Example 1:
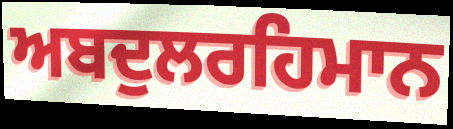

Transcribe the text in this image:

ਅਬਦੁਲਰਹਿਮਾਨ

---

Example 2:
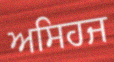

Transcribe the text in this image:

ਅਸਿਹਜ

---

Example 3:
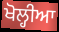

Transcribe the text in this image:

ਖੋਲ੍ਹੀਆ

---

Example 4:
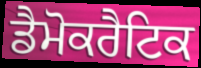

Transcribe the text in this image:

ਡੈਮੋਕਰੈਟਿਕ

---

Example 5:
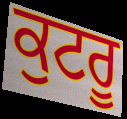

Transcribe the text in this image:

ਕੁਟਰੂ